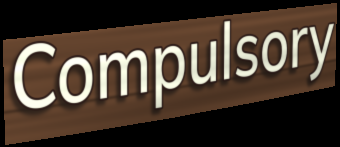
Compulsory